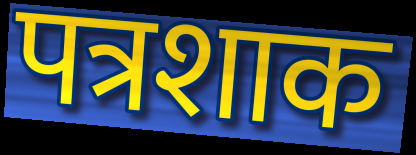
पत्रशाक